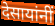
देसायांनीं